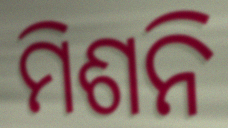
ମିଶନି